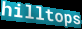
hilltops